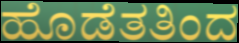
ಹೊಡೆತತಿಂದ